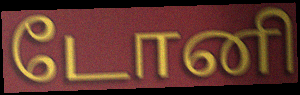
டோனி